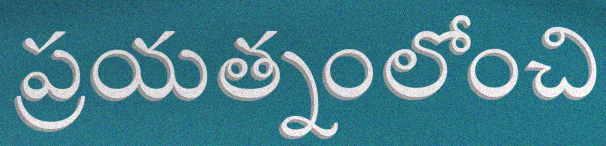
ప్రయత్నంలోంచి